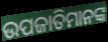
ଉପଜାତିମାନଙ୍କ